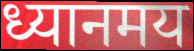
ध्यानमय